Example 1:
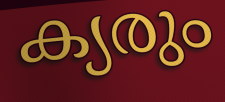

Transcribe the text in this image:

ക്യരും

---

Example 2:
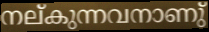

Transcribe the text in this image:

നല്കുന്നവനാണു്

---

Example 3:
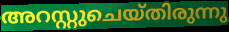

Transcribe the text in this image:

അറസ്റ്റുചെയ്തിരുന്നു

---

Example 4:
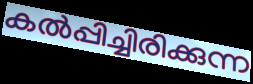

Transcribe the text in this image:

കൽപ്പിച്ചിരിക്കുന്ന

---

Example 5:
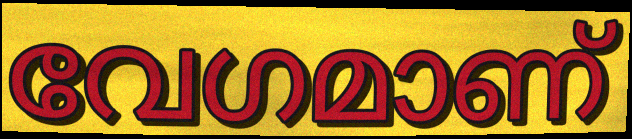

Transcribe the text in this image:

വേഗമാണ്